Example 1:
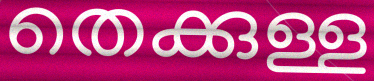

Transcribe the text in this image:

തെക്കുള്ള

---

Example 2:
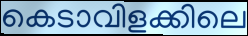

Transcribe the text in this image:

കെടാവിളക്കിലെ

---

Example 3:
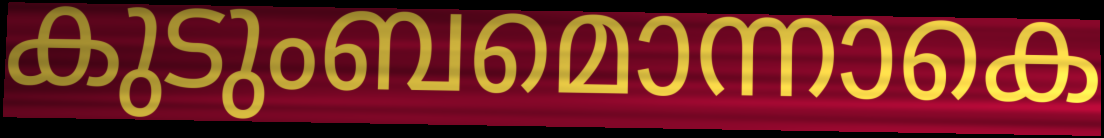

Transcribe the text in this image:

കുടുംബമൊന്നാകെ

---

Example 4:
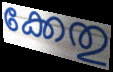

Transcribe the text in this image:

ക്കേതു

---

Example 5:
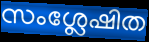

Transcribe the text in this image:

സംശ്ലേഷിത